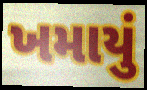
ખમાયું